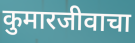
कुमारजीवाचा